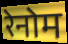
रेनोम